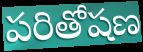
పరితోషణ